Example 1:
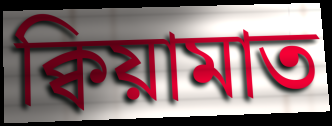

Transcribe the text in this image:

ক্বিয়ামাত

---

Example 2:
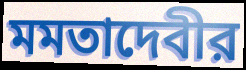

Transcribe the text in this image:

মমতাদেবীর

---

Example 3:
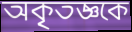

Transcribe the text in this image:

অকৃতজ্ঞকে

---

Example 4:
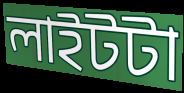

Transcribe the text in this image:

লাইটটা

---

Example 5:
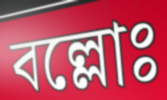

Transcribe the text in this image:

বল্লোঃ